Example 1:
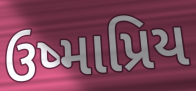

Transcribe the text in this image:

ઉષ્માપ્રિય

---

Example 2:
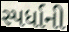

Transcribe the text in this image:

સ્પર્ધાની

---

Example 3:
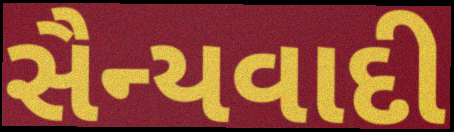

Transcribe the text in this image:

સૈન્યવાદી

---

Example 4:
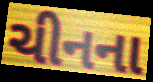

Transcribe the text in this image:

ચીનના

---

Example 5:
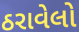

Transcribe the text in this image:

ઠરાવેલો